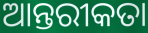
ଆନ୍ତରୀକତା